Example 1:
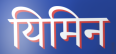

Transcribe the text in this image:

यिमिन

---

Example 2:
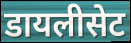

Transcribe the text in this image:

डायलीसेट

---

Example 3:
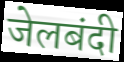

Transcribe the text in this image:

जेलबंदी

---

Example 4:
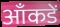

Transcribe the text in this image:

आँकडें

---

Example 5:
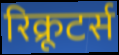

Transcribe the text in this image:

रिक्रूटर्स